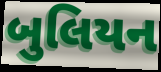
બુલિયન